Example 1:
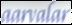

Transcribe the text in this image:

aarvalar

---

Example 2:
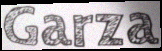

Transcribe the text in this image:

Garza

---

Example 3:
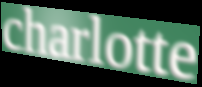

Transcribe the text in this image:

charlotte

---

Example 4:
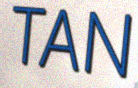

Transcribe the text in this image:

TAN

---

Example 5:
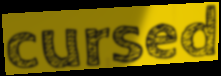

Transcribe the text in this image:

cursed